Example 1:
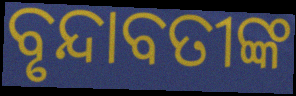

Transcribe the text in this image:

ବୃନ୍ଦାବତୀଙ୍କ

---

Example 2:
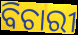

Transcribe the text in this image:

ବିଚାରୀ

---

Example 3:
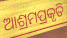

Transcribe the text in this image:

ଆଶ୍ରମପ୍ରକୃତି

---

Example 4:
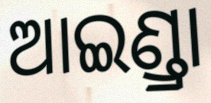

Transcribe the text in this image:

ଆଇଣ୍ଡ୍ରା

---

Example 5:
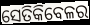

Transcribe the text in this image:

ସେତିକିବେଳର